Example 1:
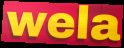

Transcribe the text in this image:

wela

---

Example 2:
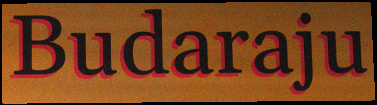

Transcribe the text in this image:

Budaraju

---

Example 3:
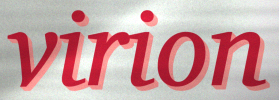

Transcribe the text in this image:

virion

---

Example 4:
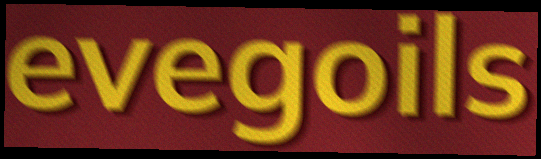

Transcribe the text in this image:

evegoils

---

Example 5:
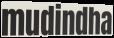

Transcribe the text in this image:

mudindha